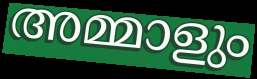
അമ്മാളും